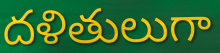
దళితులుగా